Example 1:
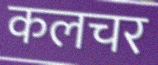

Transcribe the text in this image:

कलचर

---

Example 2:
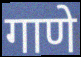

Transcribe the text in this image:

गाणे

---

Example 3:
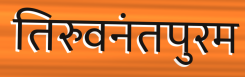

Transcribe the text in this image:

तिरुवनंतपुरम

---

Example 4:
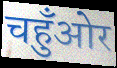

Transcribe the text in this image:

चहुँओर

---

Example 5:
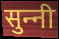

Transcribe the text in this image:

सुन्नी